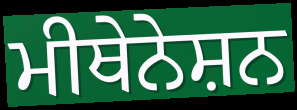
ਮੀਥੇਨੇਸ਼ਨ